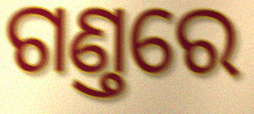
ଗଣ୍ତରେ